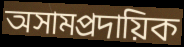
অসামপ্রদায়িক